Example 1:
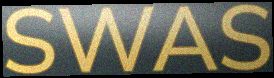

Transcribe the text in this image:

SWAS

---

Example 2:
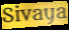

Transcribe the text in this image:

Sivaya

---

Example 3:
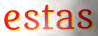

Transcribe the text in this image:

estas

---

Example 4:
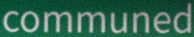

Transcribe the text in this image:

communed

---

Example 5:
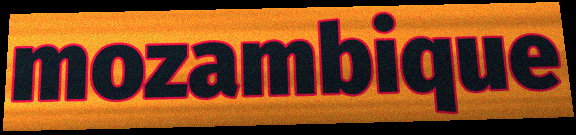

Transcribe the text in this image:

mozambique